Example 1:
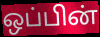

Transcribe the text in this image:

ஒப்பின்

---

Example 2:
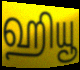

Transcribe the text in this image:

ஹியூ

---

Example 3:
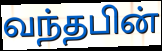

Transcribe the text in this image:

வந்தபின்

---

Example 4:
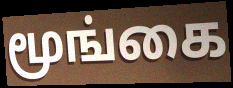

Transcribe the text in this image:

மூங்கை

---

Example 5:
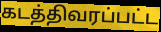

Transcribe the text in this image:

கடத்திவரப்பட்ட